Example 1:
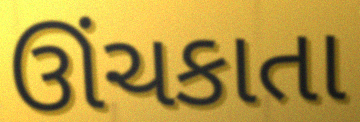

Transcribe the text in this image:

ઊંચકાતા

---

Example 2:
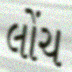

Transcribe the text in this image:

લોંચ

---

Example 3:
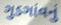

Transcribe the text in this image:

ગુડગાંવનું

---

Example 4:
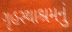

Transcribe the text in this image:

ગૃહસ્થાશ્રમનું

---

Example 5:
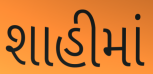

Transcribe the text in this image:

શાહીમાં